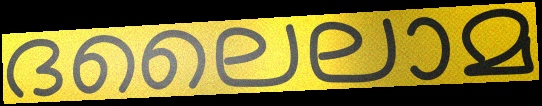
ദലൈലാമ